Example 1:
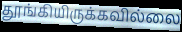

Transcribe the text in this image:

தூங்கியிருக்கவில்லை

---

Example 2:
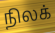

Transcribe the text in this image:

நிலக்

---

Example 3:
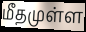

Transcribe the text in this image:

மீதமுள்ள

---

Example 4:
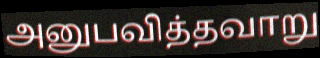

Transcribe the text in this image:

அனுபவித்தவாறு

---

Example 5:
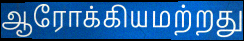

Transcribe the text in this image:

ஆரோக்கியமற்றது